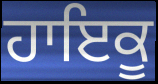
ਹਾਇਕੂ